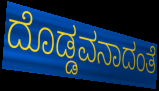
ದೊಡ್ಡವನಾದಂತೆ